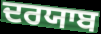
ਦਰਯਾਬ